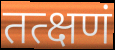
तत्क्षणं